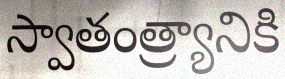
స్వాతంత్ర్యానికి